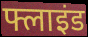
फ्लाइंड